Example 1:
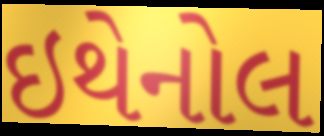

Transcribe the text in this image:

ઇથેનોલ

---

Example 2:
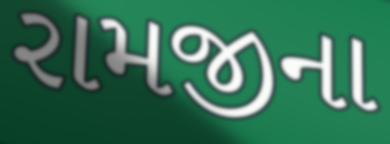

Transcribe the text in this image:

રામજીના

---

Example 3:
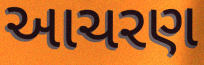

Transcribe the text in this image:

આચરણ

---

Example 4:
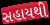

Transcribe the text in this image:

સહાયથી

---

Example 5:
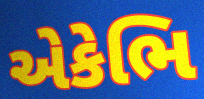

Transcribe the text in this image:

એકેભિ